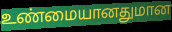
உண்மையானதுமான